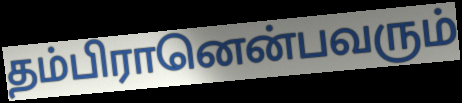
தம்பிரானென்பவரும்